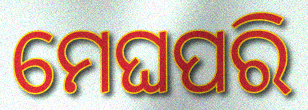
ମେଘପରି